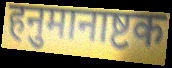
हनुमानाष्टक